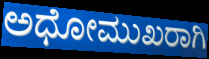
ಅಧೋಮುಖರಾಗಿ